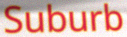
Suburb